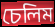
চেলিম